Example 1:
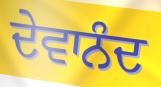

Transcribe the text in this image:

ਦੇਵਾਨੰਦ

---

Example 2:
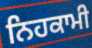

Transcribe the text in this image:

ਨਿਹਕਾਮੀ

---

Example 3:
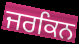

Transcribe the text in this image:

ਜਰਕਿਨ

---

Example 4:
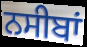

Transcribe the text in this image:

ਨਸੀਬਾਂ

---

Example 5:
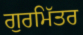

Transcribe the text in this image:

ਗੁਰਮਿੱਤਰ